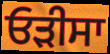
ਓੜੀਸਾ